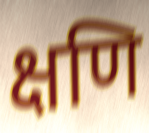
क्षणि